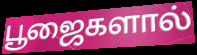
பூஜைகளால்